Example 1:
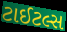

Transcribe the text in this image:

ટાઈટલ્સ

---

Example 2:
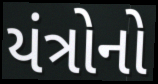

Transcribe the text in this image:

યંત્રોનો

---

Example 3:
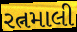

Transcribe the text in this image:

રત્નમાલી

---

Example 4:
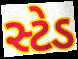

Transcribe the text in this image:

સ્ટેડ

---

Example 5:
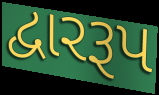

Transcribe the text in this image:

દ્વારરૂપ